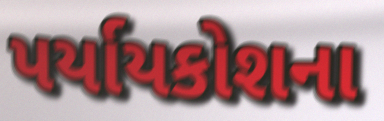
પર્યાયકોશના